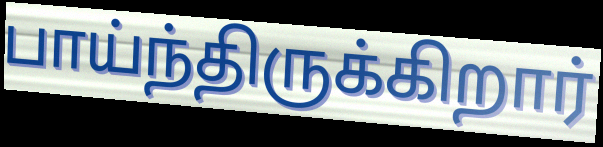
பாய்ந்திருக்கிறார்